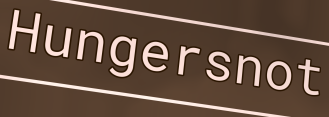
Hungersnot